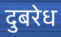
दुबरेध